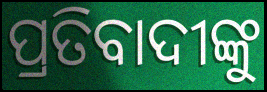
ପ୍ରତିବାଦୀଙ୍କୁ